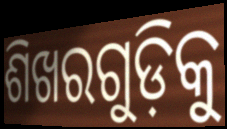
ଶିଖରଗୁଡ଼ିକୁ